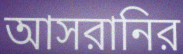
আসরানির